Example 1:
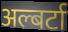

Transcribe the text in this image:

अल्बर्टा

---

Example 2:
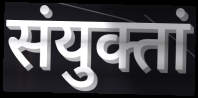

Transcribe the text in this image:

संयुक्तां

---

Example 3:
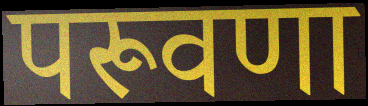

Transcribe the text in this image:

परूवणा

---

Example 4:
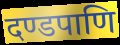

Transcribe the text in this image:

दण्डपाणि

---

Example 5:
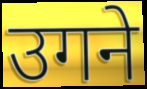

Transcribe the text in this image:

उगने